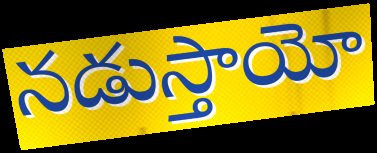
నడుస్తాయో